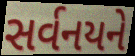
સર્વનયને